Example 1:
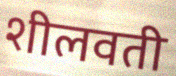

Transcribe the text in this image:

शीलवती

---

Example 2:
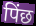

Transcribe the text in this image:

पिंछ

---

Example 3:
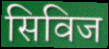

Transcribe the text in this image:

सिविज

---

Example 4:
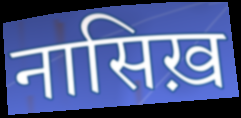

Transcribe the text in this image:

नासिख़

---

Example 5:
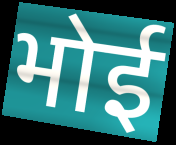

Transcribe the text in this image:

भोई